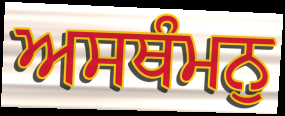
ਅਸਥੰਮਨੁ